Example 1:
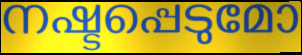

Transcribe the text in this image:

നഷ്ടപ്പെടുമോ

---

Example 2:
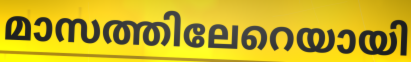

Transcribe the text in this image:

മാസത്തിലേറെയായി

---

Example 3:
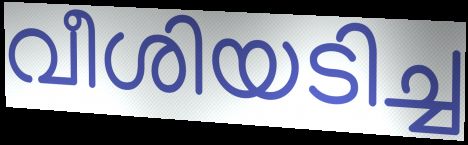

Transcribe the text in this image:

വീശിയടിച്ച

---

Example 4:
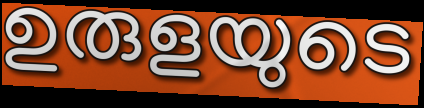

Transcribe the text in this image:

ഉരുളയുടെ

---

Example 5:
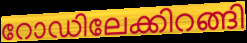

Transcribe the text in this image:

റോഡിലേക്കിറങ്ങി